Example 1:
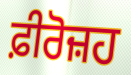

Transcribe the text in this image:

ਫ਼ੀਰੋਜ਼ਹ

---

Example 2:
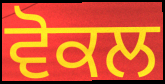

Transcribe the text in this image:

ਵੋਕਲ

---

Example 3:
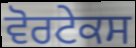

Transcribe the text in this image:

ਵੋਰਟੇਕਸ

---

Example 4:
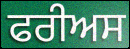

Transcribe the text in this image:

ਫਰੀਅਸ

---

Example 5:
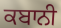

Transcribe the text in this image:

ਕਬਾਨੀ